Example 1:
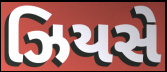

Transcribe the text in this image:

ઝિયસે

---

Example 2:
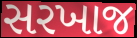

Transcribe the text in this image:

સરખાજ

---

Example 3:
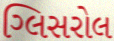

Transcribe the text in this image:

ગ્લિસરોલ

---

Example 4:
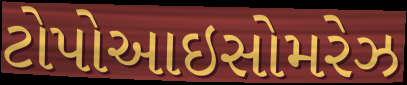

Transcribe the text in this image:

ટોપોઆઇસોમરેઝ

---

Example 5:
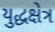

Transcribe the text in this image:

યુદ્ધક્ષેત્ર